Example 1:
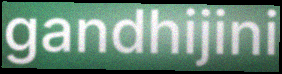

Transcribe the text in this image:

gandhijini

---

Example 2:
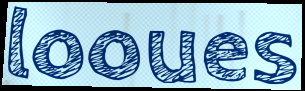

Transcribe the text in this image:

looues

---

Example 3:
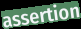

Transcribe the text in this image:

assertion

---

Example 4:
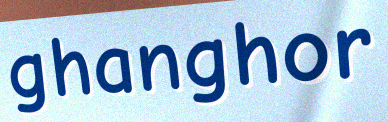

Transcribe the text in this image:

ghanghor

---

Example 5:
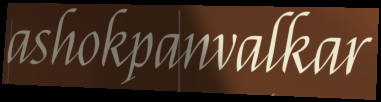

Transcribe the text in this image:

ashokpanvalkar